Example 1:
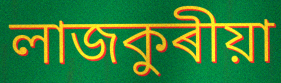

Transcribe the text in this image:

লাজকুৰীয়া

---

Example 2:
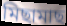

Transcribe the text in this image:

মিছামাছ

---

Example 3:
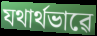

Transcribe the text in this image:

যথাৰ্থভাৱে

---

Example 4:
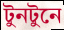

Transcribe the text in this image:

টুনটুনে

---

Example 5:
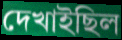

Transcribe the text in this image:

দেখাইছিল